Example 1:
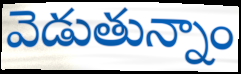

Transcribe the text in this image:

వెడుతున్నాం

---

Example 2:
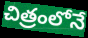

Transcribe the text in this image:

చిత్రంలోనే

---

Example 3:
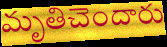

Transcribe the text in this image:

మృతిచెందారు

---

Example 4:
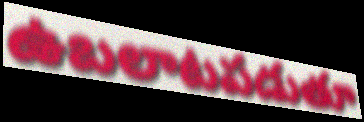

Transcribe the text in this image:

ఉబలాటపడుతూ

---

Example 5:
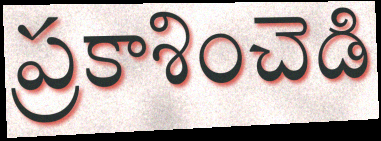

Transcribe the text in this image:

ప్రకాశించెడి